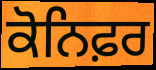
ਕੋਨਿਫ਼ਰ